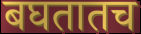
बघतातच